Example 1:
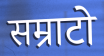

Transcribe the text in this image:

सम्राटो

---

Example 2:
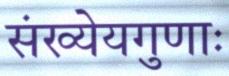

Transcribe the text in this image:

संख्येयगुणाः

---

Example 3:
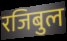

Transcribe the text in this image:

रजिबुल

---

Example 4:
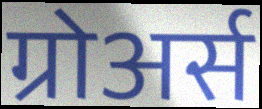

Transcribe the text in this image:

ग्रोअर्स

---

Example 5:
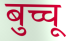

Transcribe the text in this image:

बुच्चू